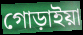
গোড়াইয়া